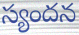
స్యందన